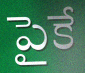
పైకే